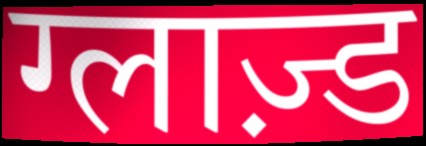
ग्लाज़्ड